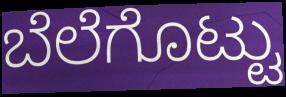
ಬೆಲೆಗೊಟ್ಟು